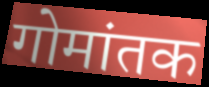
गोमांतक